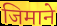
जिमाने